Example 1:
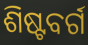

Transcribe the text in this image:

ଶିଷ୍ଟବର୍ଗ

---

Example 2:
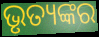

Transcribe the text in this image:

ଭୃତ୍ୟଙ୍କର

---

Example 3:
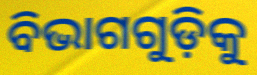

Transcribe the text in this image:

ବିଭାଗଗୁଡ଼ିକୁ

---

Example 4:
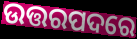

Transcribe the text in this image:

ଉତ୍ତରପଦରେ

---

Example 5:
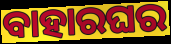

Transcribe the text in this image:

ବାହାରଘର